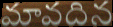
మావదిన